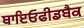
ਬਾਇਓਫੀਡਬੈਕ